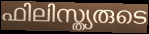
ഫിലിസ്ത്യരുടെ